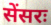
सेंसरः